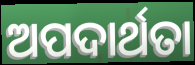
ଅପଦାର୍ଥତା